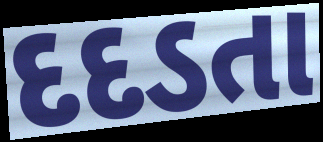
દદડતા